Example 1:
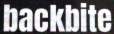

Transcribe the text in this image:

backbite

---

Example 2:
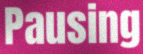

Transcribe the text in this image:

Pausing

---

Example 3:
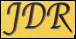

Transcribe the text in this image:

JDR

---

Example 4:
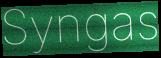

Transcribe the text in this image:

Syngas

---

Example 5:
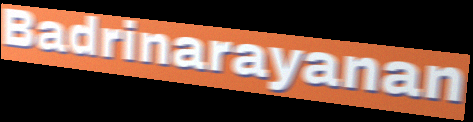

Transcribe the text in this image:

Badrinarayanan